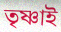
তৃষ্ণাই